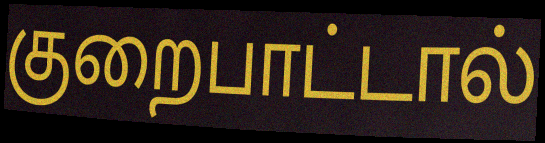
குறைபாட்டால்